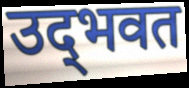
उद्‌भवत